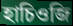
হাচিওজি